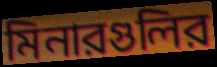
মিনারগুলির